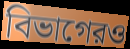
বিভাগেরও